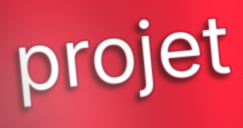
projet